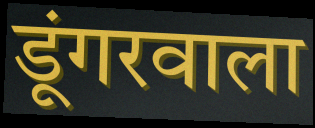
डूंगरवाला